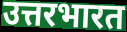
उत्तरभारत